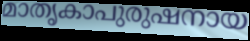
മാതൃകാപുരുഷനായ